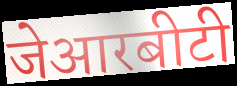
जेआरबीटी